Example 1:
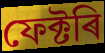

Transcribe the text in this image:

ফেক্টৰি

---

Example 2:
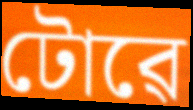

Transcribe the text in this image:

টোৱে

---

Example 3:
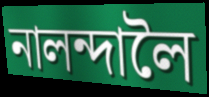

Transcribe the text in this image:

নালন্দালৈ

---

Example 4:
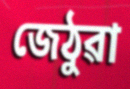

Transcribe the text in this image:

জেঠুৱা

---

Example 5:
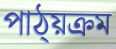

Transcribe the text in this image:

পাঠ্য়ক্ৰম